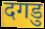
दगडु